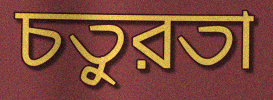
চতুরতা